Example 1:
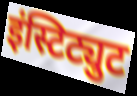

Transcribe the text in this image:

इंस्टिट्युट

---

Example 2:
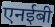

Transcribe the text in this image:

एनईबी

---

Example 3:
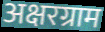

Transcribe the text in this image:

अक्षरग्राम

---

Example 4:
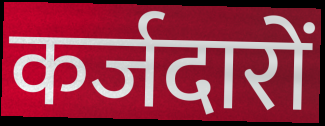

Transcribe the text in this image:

कर्जदारों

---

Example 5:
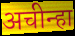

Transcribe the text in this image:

अचीन्हा